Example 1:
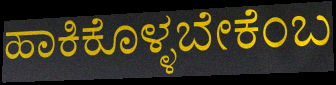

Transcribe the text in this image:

ಹಾಕಿಕೊಳ್ಳಬೇಕೆಂಬ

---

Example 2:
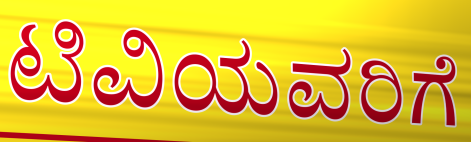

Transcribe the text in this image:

ಟಿವಿಯವರಿಗೆ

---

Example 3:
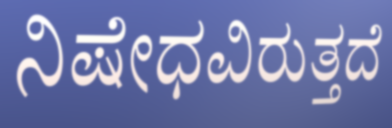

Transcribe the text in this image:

ನಿಷೇಧವಿರುತ್ತದೆ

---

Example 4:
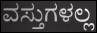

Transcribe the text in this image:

ವಸ್ತುಗಳಲ್ಲ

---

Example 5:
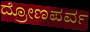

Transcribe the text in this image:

ದ್ರೋಣಪರ್ವ